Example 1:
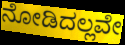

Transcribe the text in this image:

ನೋಡಿದಲ್ಲವೇ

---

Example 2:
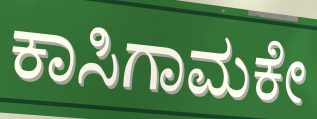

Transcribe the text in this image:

ಕಾಸಿಗಾಮಕೇ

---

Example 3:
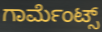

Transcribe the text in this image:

ಗಾರ್ಮೆಂಟ್ಸ್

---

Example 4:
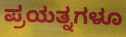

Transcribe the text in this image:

ಪ್ರಯತ್ನಗಳೂ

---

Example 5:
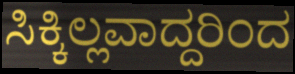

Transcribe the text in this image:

ಸಿಕ್ಕಿಲ್ಲವಾದ್ದರಿಂದ